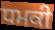
ਧਮਕੀ